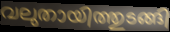
വലുതായിത്തുടങ്ങി